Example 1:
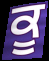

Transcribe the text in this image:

ਕੂ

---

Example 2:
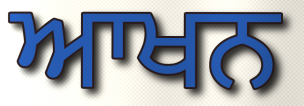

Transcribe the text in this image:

ਆਖਨ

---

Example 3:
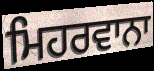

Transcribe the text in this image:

ਮਿਹਰਵਾਨਾ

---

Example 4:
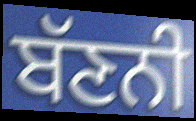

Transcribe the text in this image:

ਬੱਣਨੀ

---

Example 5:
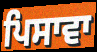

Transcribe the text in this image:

ਪਿਸਾਵਾ